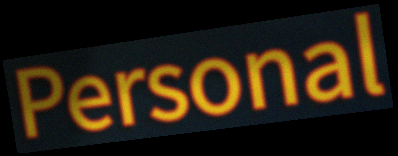
Personal